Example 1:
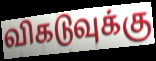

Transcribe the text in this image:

விகடுவுக்கு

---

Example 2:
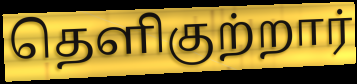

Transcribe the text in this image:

தெளிகுற்றார்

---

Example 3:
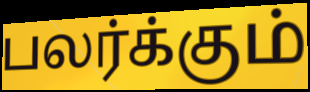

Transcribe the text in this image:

பலர்க்கும்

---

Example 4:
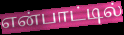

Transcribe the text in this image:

என்பாட்டில்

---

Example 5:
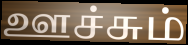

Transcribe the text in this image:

ஊச்சும்